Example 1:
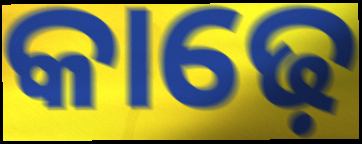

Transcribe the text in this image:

କାଢ଼େ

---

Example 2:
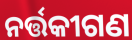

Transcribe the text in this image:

ନର୍ତ୍ତକୀଗଣ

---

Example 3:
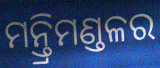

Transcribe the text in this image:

ମନ୍ତ୍ରିମଣ୍ଡଳର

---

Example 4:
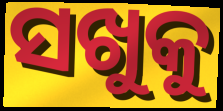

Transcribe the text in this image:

ସଖୁକୁ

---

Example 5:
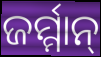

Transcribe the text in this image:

ଜର୍ମ୍ମାନ୍